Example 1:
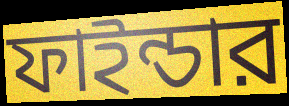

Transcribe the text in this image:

ফাইন্ডার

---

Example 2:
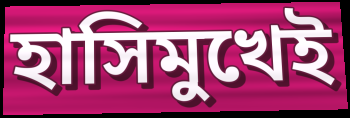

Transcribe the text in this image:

হাসিমুখেই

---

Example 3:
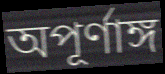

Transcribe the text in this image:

অপূর্ণাঙ্গ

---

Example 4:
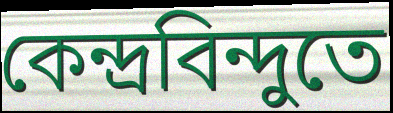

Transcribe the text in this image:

কেন্দ্রবিন্দুতে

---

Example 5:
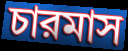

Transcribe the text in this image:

চারমাস